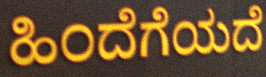
ಹಿಂದೆಗೆಯದೆ